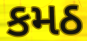
કમઠ